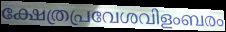
ക്ഷേത്രപ്രവേശവിളംബരം